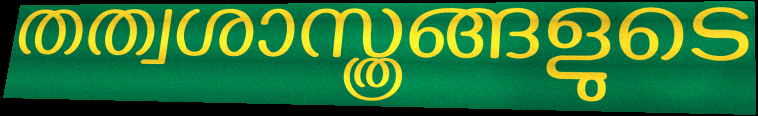
തത്വശാസ്ത്രങ്ങളുടെ